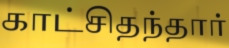
காட்சிதந்தார்